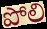
పోలి